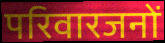
परिवारजनों